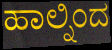
ಹಾಲ್ನಿಂದ